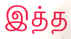
இத்த